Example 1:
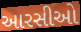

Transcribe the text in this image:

આરસીઓ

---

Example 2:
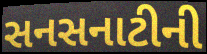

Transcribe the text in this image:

સનસનાટીની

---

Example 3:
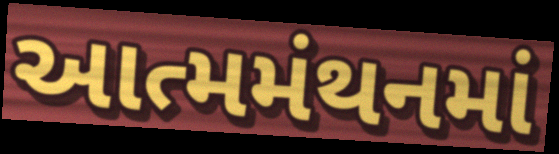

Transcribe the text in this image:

આત્મમંથનમાં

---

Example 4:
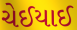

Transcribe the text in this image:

ચેઈયાઈ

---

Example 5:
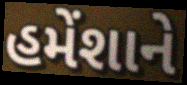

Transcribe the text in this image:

હમેંશાને